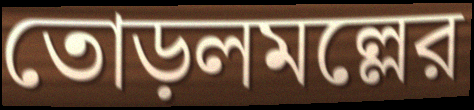
তোড়লমল্লের